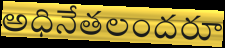
అధినేతలందరూ